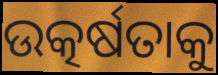
ଉତ୍କର୍ଷତାକୁ